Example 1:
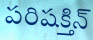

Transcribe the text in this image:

పరిషక్తిన్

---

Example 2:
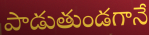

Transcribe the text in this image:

పాడుతుండగానే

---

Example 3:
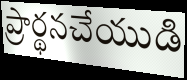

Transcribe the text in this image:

ప్రార్థనచేయుడి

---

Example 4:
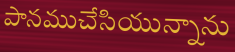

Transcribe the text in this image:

పానముచేసియున్నాను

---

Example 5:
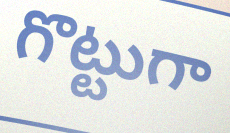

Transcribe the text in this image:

గొట్టుగా